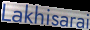
Lakhisarai